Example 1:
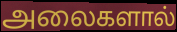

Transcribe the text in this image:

அலைகளால்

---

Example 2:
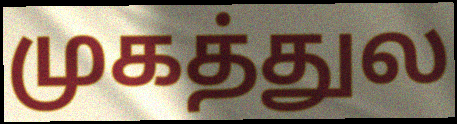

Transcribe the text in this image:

முகத்துல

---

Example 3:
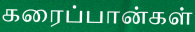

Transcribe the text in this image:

கரைப்பான்கள்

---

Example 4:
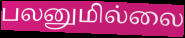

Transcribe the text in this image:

பலனுமில்லை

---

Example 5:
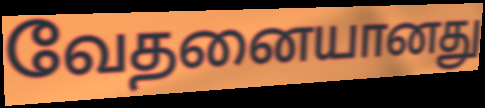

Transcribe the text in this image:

வேதனையானது